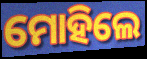
ମୋହିଲେ